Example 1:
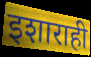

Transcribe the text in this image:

इशाराही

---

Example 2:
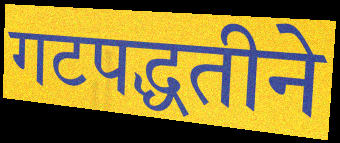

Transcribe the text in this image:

गटपद्धतीने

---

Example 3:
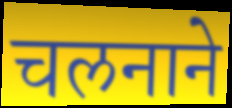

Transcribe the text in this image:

चलनाने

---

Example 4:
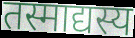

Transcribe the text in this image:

तस्माद्यस्य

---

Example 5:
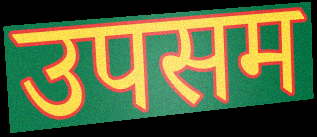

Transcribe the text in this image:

उपसम